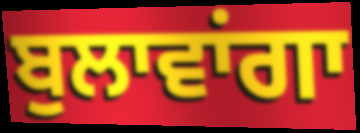
ਬੁਲਾਵਾਂਗਾ